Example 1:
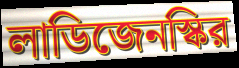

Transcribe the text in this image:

লাডিজেনস্কির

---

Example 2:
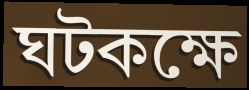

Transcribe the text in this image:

ঘটকক্ষে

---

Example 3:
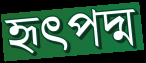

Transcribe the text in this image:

হৃৎপদ্ম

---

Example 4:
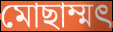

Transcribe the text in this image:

মোছাম্মৎ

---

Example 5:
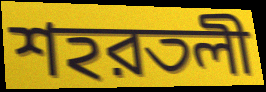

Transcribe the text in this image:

শহরতলী